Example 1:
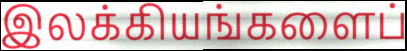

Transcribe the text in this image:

இலக்கியங்களைப்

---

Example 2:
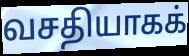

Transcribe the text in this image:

வசதியாகக்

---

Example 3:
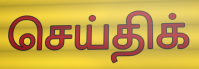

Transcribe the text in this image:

செய்திக்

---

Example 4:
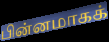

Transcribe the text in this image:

பின்னமாகக்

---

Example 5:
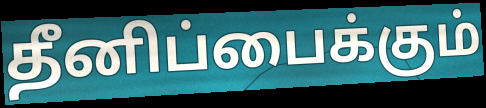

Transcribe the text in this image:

தீனிப்பைக்கும்